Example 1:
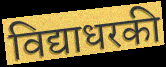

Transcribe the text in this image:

विद्याधरकी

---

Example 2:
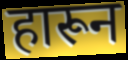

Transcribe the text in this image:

हारून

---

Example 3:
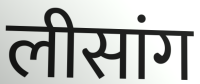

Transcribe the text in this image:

लीसांग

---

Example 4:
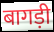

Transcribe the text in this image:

बागड़ी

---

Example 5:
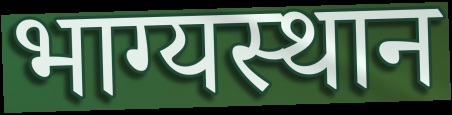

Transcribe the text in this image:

भाग्यस्थान